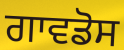
ਗਾਵਡੋਸ